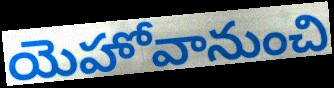
యెహోవానుంచి